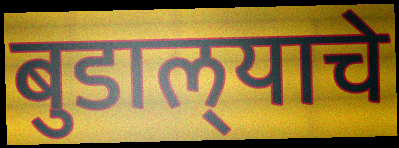
बुडाल्याचे